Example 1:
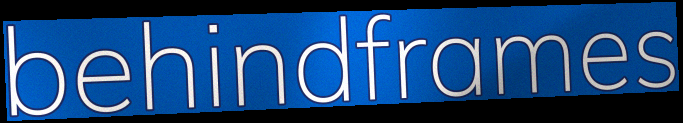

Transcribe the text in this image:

behindframes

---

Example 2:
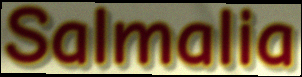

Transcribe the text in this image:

Salmalia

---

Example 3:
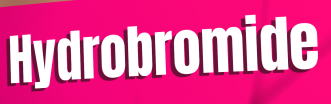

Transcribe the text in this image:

Hydrobromide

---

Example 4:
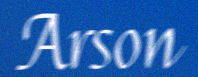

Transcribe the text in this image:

Arson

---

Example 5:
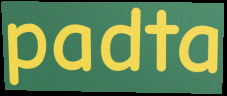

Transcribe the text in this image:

padta